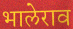
भालेराव